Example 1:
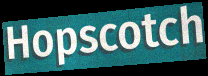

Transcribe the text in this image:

Hopscotch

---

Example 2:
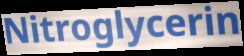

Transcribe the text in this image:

Nitroglycerin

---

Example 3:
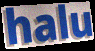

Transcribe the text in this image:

halu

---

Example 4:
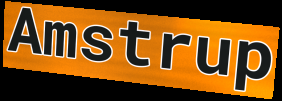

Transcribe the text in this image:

Amstrup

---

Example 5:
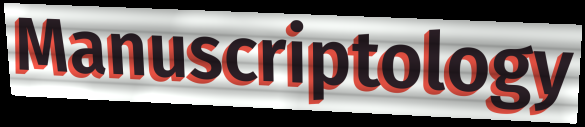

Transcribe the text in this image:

Manuscriptology